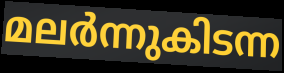
മലർന്നുകിടന്ന